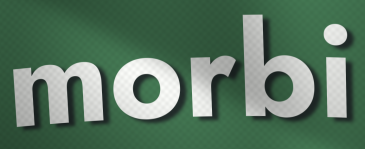
morbi